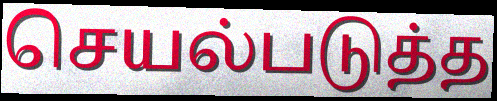
செயல்படுத்த